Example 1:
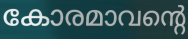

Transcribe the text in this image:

കോരമാവന്റെ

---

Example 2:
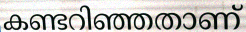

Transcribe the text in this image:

കണ്ടറിഞ്ഞതാണ്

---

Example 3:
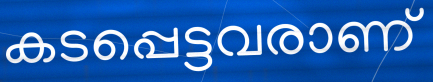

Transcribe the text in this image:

കടപ്പെട്ടവരാണ്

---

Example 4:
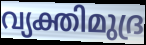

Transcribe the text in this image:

വ്യക്തിമുദ്ര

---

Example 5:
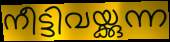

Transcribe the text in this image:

നീട്ടിവയ്ക്കുന്ന